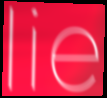
lie